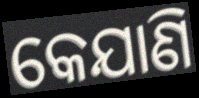
କେଯାଣି